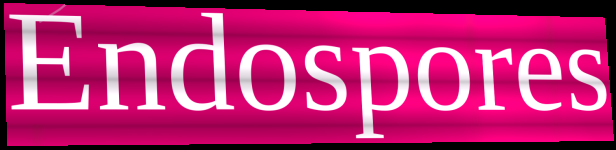
Endospores